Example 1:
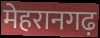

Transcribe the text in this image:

मेहरानगढ़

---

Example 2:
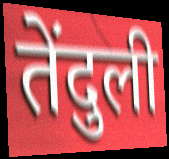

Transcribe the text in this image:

तेंदुली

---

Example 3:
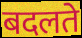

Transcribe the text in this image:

बदलते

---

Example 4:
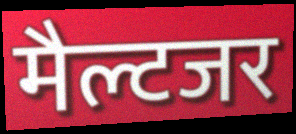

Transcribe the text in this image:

मैल्टजर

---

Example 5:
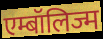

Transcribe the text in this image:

एम्बॉलिज्म